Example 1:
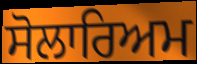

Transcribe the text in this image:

ਸੋਲਾਰਿਅਮ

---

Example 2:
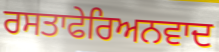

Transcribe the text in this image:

ਰਸਤਾਫੇਰਿਅਨਵਾਦ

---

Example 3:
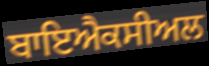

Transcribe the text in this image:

ਬਾਇਐਕਸੀਅਲ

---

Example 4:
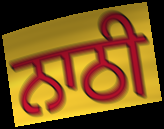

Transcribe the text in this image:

ਨਾਠੀ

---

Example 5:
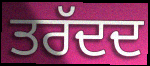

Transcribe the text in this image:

ਤਰੱਦਦ